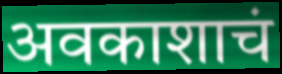
अवकाशाचं